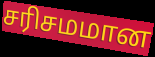
சரிசமமான